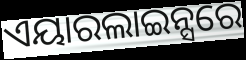
ଏୟାରଲାଇନ୍ସରେ